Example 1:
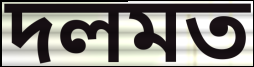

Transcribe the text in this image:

দলমত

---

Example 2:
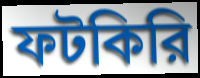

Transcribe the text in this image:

ফটকিরি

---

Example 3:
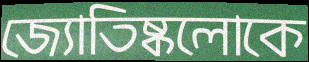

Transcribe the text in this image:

জ্যোতিষ্কলোকে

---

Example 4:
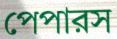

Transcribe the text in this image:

পেপারস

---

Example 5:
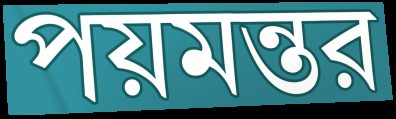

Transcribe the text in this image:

পয়মন্তর